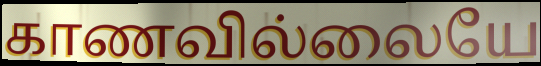
காணவில்லையே